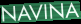
NAVINA